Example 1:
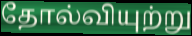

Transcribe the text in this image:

தோல்வியுற்று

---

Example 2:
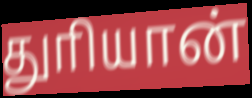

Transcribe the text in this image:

துரியான்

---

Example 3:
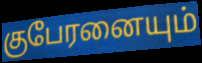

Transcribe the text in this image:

குபேரனையும்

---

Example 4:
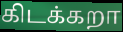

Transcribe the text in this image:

கிடக்கறா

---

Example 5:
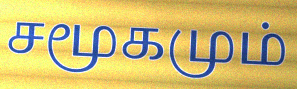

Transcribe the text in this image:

சமூகமும்